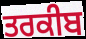
ਤਰਕੀਬ